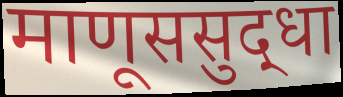
माणूससुद्धा